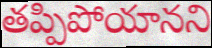
తప్పిపోయానని